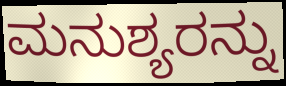
ಮನುಶ್ಯರನ್ನು